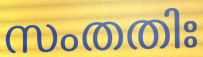
സംതതിഃ